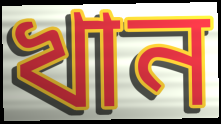
খান